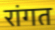
रांगत